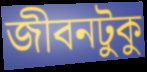
জীবনটুকু